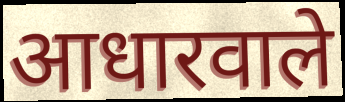
आधारवाले